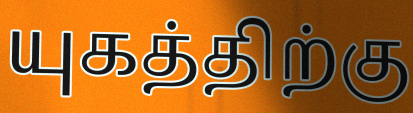
யுகத்திற்கு